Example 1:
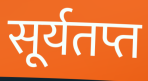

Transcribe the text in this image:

सूर्यतप्त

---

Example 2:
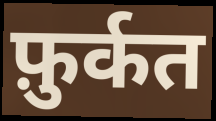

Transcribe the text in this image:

फ़ुर्कत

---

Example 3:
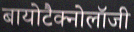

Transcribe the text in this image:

बायोटैक्नोलॉजी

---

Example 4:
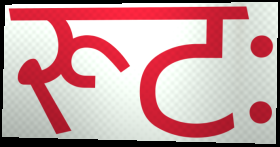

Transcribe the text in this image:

रूटः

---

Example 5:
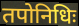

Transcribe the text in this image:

तपोनिधिः